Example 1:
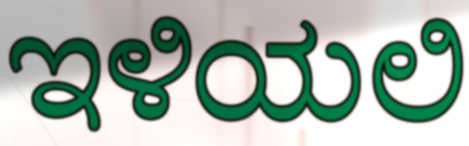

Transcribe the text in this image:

ಇಳಿಯಲಿ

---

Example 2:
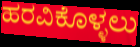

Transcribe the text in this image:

ಹರವಿಕೊಳ್ಳಲು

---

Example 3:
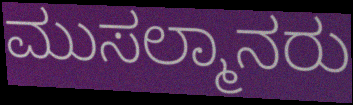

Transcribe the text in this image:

ಮುಸಲ್ಮಾನರು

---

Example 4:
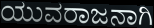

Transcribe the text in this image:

ಯುವರಾಜನಾಗಿ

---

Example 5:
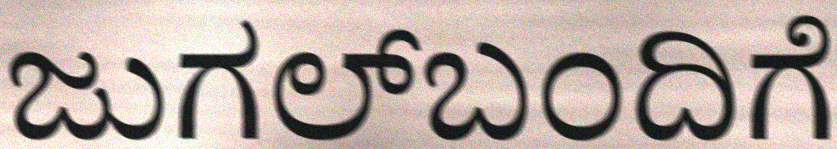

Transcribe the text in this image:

ಜುಗಲ್‌ಬಂದಿಗೆ